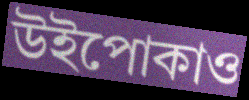
উইপোকাও